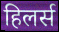
हिलर्स